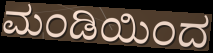
ಮಂಡಿಯಿಂದ